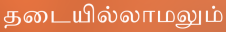
தடையில்லாமலும்